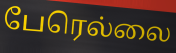
பேரெல்லை